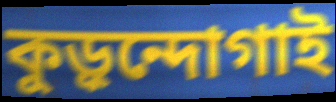
কুড়ুন্দোগাই